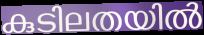
കുടിലതയിൽ